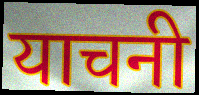
याचनी